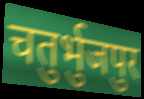
चतुर्भुजपुर